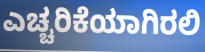
ಎಚ್ಚರಿಕೆಯಾಗಿರಲಿ